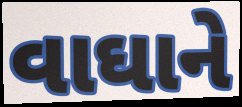
વાઘાને